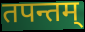
तपन्तम्